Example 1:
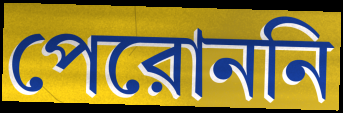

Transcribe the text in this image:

পেরোননি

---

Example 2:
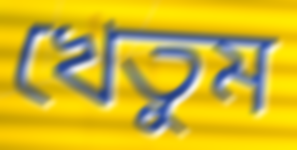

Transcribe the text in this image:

খেতুম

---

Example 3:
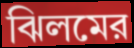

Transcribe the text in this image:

ঝিলমের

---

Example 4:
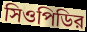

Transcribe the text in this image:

সিওপিডির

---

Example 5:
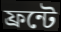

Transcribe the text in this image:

ফ্রন্টে